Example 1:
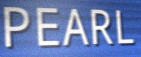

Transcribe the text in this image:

PEARL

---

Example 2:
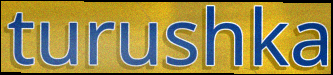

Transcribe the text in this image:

turushka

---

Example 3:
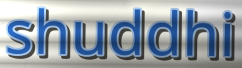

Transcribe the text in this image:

shuddhi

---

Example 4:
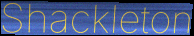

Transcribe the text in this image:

Shackleton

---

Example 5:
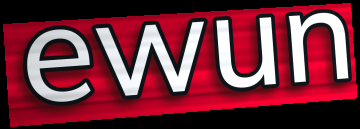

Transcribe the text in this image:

ewun